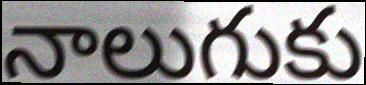
నాలుగుకు